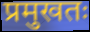
प्रमुखतः